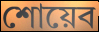
শোয়েব